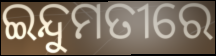
ଇନ୍ଦୁମତୀରେ